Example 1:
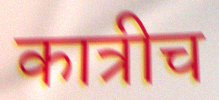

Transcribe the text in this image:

कात्रीच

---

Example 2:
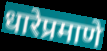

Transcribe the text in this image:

धारेप्रमाणे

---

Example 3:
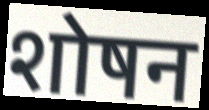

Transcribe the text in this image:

शोषन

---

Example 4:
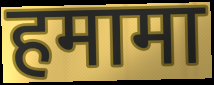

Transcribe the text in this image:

हमामा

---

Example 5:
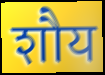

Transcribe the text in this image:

शौय